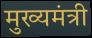
मुख्‍यमंत्री